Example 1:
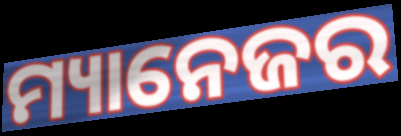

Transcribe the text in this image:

ମ୍ୟାନେଜର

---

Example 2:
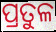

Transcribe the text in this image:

ପ୍ରତୁଳ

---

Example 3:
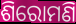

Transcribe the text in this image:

ଶିରୋମଣି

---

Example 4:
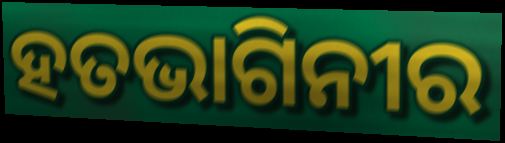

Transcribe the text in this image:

ହତଭାଗିନୀର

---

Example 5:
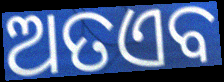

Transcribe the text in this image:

ଅତଏବ